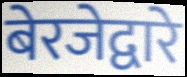
बेरजेद्वारे